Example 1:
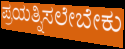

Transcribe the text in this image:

ಪ್ರಯತ್ನಿಸಲೇಬೇಕು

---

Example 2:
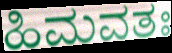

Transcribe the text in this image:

ಹಿಮವತಃ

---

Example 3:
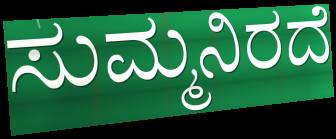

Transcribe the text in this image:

ಸುಮ್ಮನಿರದೆ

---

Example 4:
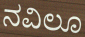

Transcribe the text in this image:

ನವಿಲೂ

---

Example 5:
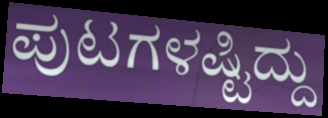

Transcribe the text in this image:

ಪುಟಗಳಷ್ಟಿದ್ದು